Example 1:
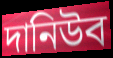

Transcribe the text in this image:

দানিউব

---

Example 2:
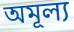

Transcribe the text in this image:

অমূল্য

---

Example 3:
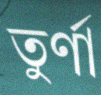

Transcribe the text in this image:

তুর্ণা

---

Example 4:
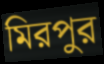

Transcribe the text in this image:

মিরপুর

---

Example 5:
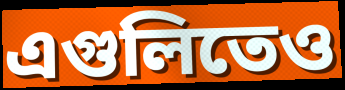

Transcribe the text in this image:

এগুলিতেও